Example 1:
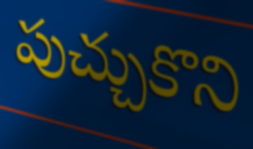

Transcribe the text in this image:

పుచ్చుకొని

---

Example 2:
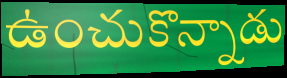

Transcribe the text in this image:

ఉంచుకొన్నాడు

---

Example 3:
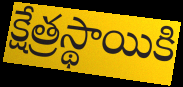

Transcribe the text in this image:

క్షేత్రస్థాయికి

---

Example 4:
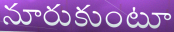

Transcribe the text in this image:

నూరుకుంటూ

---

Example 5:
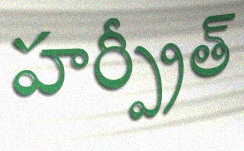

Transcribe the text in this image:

హర్ప్రీత్